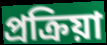
প্রক্রিয়া